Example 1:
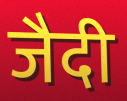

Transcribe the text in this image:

जैदी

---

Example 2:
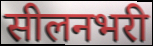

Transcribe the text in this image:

सीलनभरी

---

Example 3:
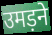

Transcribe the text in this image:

उमड़ने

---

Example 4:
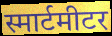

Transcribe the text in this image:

स्मार्टमीटर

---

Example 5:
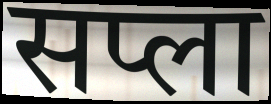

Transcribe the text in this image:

सप्ला